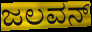
ಜಲವನ್